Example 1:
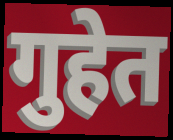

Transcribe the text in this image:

गुहेत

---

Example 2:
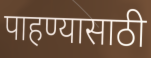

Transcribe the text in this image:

पाहण्यासाठी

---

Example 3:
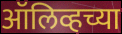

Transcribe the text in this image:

ऑलिव्हच्या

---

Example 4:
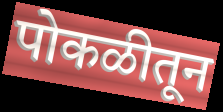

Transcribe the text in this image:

पोकळीतून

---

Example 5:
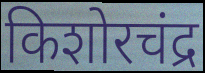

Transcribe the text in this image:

किशोरचंद्र